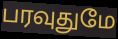
பரவுதுமே